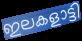
ഇലകളാട്ടി